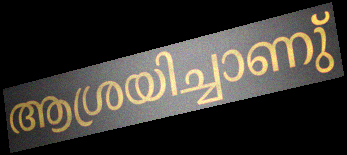
ആശ്രയിച്ചാണു്